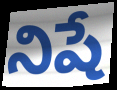
నిషే